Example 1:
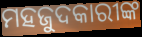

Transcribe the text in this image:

ମହଜୁଦକାରୀଙ୍କ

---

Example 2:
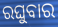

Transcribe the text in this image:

ରଘୁବାର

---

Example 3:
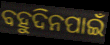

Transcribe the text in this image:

ବହୁଦିନପାଇଁ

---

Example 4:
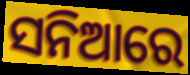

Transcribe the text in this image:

ସନିଆରେ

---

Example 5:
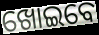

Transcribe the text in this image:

ଖୋଇବେ